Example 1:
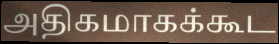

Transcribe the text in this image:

அதிகமாகக்கூட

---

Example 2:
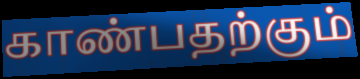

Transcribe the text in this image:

காண்பதற்கும்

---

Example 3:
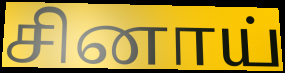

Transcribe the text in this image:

சினாய்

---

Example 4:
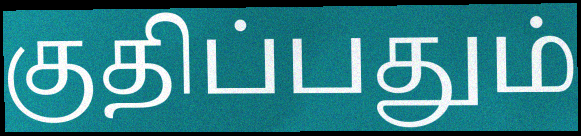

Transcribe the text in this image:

குதிப்பதும்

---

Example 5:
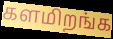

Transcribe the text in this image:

களமிறங்க